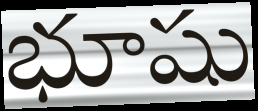
భూషు